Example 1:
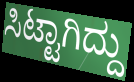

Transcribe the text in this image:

ಸಿಟ್ಟಾಗಿದ್ದು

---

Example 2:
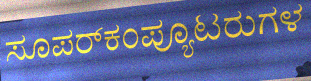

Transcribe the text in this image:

ಸೂಪರ್‌ಕಂಪ್ಯೂಟರುಗಳ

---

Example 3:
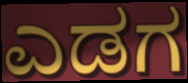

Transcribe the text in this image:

ಎಡಗ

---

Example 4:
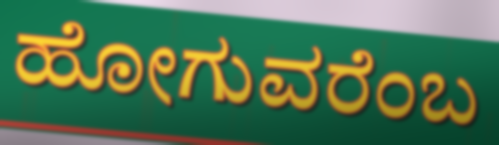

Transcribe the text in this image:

ಹೋಗುವರೆಂಬ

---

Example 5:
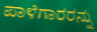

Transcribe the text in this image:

ಪಾಳೆಗಾರರನ್ನು